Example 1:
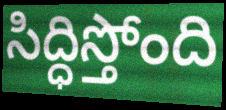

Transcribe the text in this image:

సిద్ధిస్తోంది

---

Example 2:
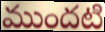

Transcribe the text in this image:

ముందటి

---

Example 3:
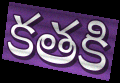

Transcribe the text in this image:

కతకి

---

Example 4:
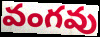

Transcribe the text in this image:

వంగవు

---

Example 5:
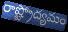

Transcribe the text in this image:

రాష్ట్రోద్యమం